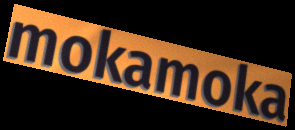
mokamoka